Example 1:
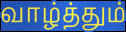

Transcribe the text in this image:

வாழ்த்தும்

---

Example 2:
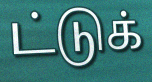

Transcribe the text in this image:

ட்டுக்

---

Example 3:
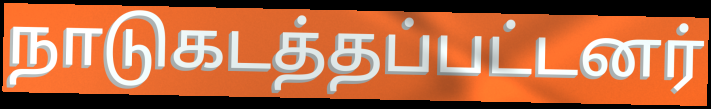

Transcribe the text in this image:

நாடுகடத்தப்பட்டனர்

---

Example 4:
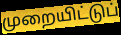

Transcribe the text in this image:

முறையிட்டுப்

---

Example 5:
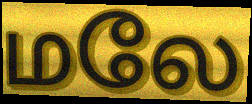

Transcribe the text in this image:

மலே